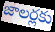
జాలర్లకు